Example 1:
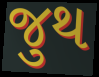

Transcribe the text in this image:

જુથ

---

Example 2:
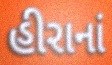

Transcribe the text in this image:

હીરાનાં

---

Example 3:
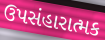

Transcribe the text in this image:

ઉપસંહારાત્મક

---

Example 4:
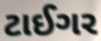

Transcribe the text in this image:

ટાઈગર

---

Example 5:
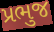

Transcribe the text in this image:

પ્રભુજ